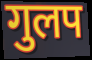
गुलप